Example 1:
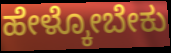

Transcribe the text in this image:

ಹೇಳ್ಕೋಬೇಕು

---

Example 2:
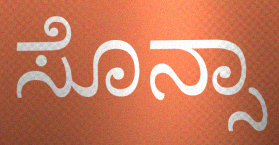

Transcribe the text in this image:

ಸೊನ್ಸಾ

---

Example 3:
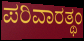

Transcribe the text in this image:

ಪರಿವಾರತ್ಥಂ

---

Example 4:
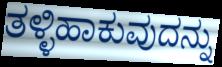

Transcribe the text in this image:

ತಳ್ಳಿಹಾಕುವುದನ್ನು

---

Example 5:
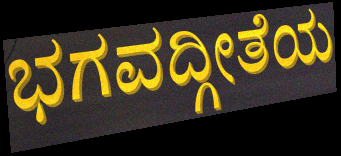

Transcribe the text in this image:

ಭಗವದ್ಗೀತೆಯ